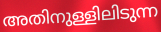
അതിനുള്ളിലിടുന്ന